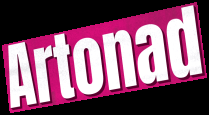
Artonad